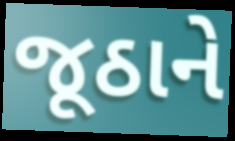
જૂઠાને